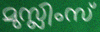
മുസ്ലിംസ്